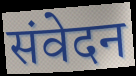
संवेदन